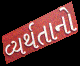
વ્યર્થતાનો